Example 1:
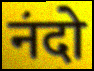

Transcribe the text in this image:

नंदो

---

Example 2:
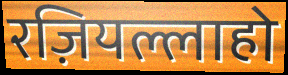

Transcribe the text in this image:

रज़ियल्लाहो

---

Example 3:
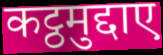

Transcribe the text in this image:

कट्ठमुद्दाए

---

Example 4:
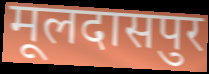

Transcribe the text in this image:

मूलदासपुर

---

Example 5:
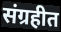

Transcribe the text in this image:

संग्रहीत